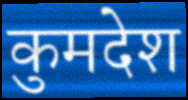
कुमदेश